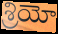
శ్రియో